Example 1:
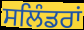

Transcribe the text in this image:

ਸਲਿੰਡਰਾਂ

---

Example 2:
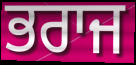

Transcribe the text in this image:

ਭਰਾਜ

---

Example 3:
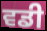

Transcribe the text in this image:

ਵਡੀ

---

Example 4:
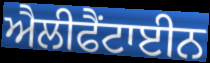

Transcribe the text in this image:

ਐਲੀਫੈਂਟਾਈਨ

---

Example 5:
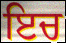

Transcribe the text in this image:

ਇਚ